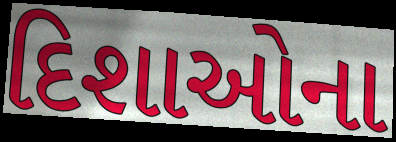
દિશાઓના